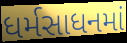
ધર્મસાધનમાં